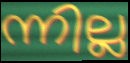
ന്നില്ല